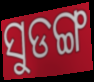
ସୁଡଙ୍ଗ